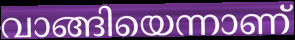
വാങ്ങിയെന്നാണ്